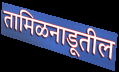
तामिळनाडूतील